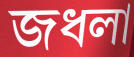
জধলা